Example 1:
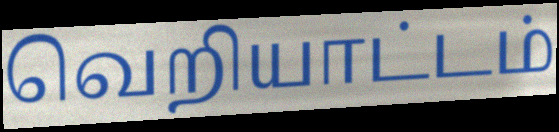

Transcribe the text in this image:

வெறியாட்டம்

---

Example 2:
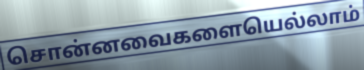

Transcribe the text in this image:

சொன்னவைகளையெல்லாம்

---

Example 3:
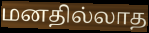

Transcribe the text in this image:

மனதில்லாத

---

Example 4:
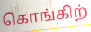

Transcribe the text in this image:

கொங்கிற்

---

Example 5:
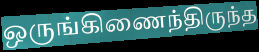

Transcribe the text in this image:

ஒருங்கிணைந்திருந்த